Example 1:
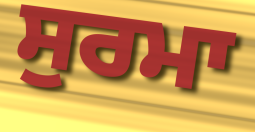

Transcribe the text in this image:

ਸੁਰਮਾ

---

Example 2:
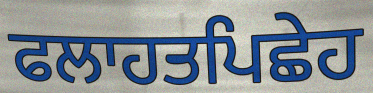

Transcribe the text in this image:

ਫਲਾਹਤਪਿਛੇਹ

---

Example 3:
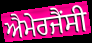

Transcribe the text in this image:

ਐਮੇਰਜੈਂਸੀ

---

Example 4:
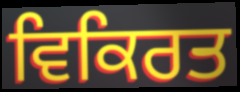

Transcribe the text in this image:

ਵਿਕਿਰਤ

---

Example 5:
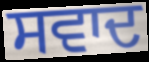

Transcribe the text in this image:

ਸਵਾਦ